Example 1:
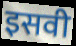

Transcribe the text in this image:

इसवी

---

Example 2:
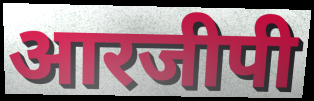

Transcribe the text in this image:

आरजीपी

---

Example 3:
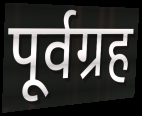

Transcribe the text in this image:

पूर्वग्रह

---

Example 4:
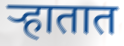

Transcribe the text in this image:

ऱ्हातात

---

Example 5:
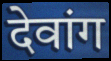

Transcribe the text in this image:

देवांग